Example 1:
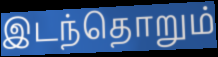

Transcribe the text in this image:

இடந்தொறும்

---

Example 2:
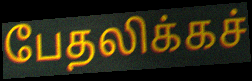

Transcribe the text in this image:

பேதலிக்கச்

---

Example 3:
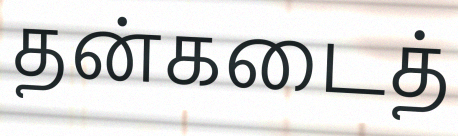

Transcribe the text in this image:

தன்கடைத்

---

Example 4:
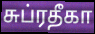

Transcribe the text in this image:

சுப்ரதீகா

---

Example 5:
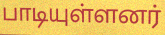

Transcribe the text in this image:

பாடியுள்ளனர்